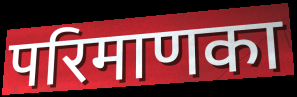
परिमाणका